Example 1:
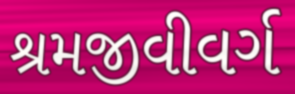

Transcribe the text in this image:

શ્રમજીવીવર્ગ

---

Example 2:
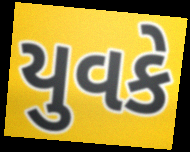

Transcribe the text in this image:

યુવકે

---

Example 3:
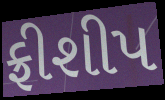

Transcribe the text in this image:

ફ્રીશીપ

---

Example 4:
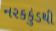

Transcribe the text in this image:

નરકકુંડથી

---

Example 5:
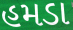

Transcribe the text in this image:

હમડા